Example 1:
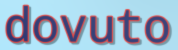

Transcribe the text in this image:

dovuto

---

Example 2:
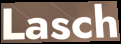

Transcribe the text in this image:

Lasch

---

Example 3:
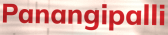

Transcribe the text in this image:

Panangipalli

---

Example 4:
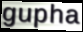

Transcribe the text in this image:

gupha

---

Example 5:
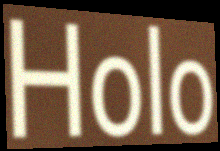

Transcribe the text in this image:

Holo